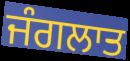
ਜੰਗਲਾਤ